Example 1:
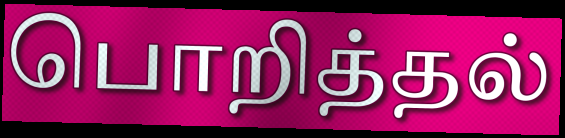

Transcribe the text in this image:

பொறித்தல்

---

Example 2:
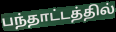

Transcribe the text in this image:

பந்தாட்டத்தில்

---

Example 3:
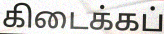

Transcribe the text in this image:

கிடைக்கப்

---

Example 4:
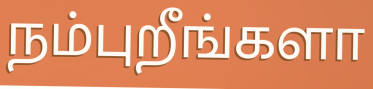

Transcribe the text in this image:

நம்புறீங்களா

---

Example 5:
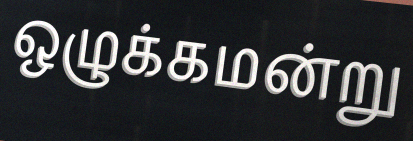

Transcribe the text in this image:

ஒழுக்கமன்று